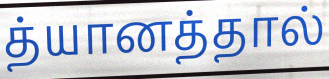
த்யானத்தால்